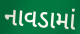
નાવડામાં